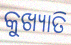
କୁଖ୍ୟାତି